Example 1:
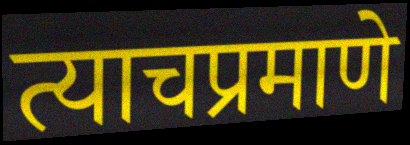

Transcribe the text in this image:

त्याचप्रमाणे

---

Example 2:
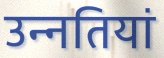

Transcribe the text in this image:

उन्नतियां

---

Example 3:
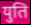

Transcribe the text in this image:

युति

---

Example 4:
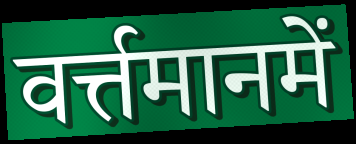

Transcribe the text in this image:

वर्त्तमानमें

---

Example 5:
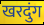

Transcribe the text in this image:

खरदुंग